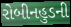
રોબીનહુડની